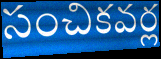
సంచికవర్ల